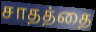
சாதத்தை